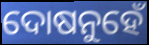
ଦୋଷନୁହେଁ